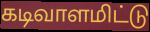
கடிவாளமிட்டு